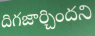
దిగజార్చిందని